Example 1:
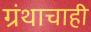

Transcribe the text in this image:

ग्रंथाचाही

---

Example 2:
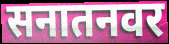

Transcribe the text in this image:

सनातनवर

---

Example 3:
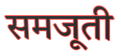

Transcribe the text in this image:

समजूती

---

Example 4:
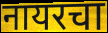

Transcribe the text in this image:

नायरचा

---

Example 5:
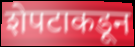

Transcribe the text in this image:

शेपटाकडून